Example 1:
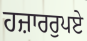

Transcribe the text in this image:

ਹਜ਼ਾਰਰੁਪਏ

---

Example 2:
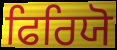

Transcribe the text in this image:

ਫਿਰਿਯੋ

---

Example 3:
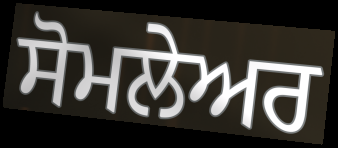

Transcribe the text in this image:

ਸੋਮਲੇਅਰ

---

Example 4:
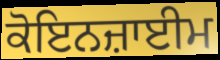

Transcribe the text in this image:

ਕੋਇਨਜ਼ਾਈਮ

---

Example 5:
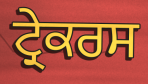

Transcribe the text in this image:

ਟ੍ਰੇਕਰਸ